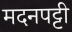
मदनपट्टी